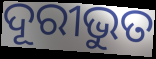
ଦୂରୀଭୁତ